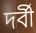
দর্বী